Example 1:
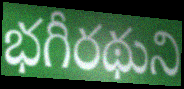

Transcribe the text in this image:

భగీరథుని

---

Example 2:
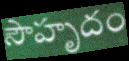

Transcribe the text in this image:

సౌహృదం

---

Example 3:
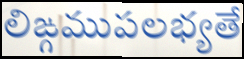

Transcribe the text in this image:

లిఙ్గముపలభ్యతే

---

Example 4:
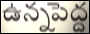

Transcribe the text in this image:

ఉన్నపెద్ద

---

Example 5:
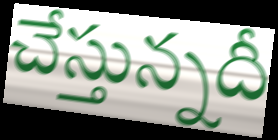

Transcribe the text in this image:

చేస్తున్నదీ